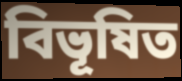
বিভূষিত